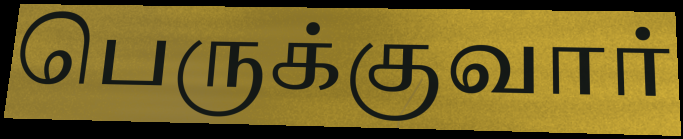
பெருக்குவார்